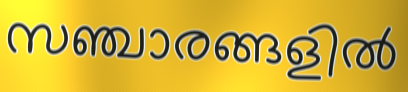
സഞ്ചാരങ്ങളിൽ